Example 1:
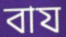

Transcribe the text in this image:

বায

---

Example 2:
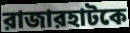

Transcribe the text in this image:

রাজারহাটকে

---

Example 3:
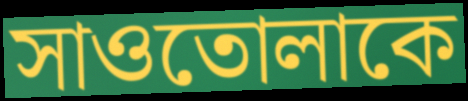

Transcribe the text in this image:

সাওতোলাকে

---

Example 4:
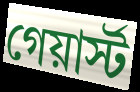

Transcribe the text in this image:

গেয়ার্স্ট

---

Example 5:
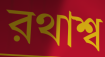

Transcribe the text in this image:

রথাশ্ব